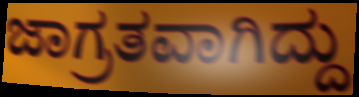
ಜಾಗ್ರತವಾಗಿದ್ದು